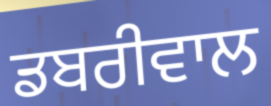
ਡਬਰੀਵਾਲ